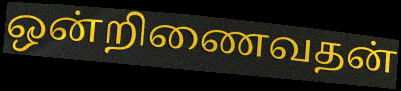
ஒன்றிணைவதன்